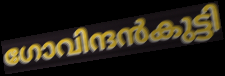
ഗോവിന്ദൻകുട്ടി